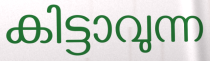
കിട്ടാവുന്ന